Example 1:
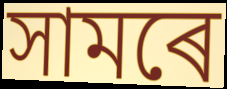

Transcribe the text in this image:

সামৰে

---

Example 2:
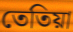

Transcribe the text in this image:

তেতিয়া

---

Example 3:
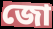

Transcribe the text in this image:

জো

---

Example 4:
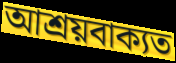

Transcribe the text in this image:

আশ্ৰয়বাক্যত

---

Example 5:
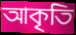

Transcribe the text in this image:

আকৃতি